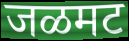
जळमट